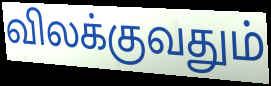
விலக்குவதும்